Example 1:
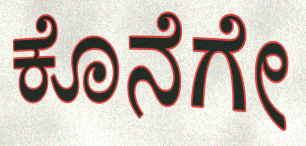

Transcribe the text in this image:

ಕೊನೆಗೇ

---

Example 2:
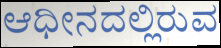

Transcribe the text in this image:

ಆಧೀನದಲ್ಲಿರುವ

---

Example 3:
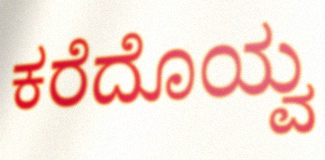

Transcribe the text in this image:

ಕರೆದೊಯ್ವ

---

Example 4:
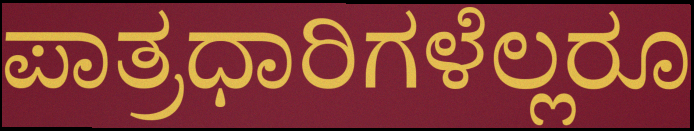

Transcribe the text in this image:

ಪಾತ್ರಧಾರಿಗಳೆಲ್ಲರೂ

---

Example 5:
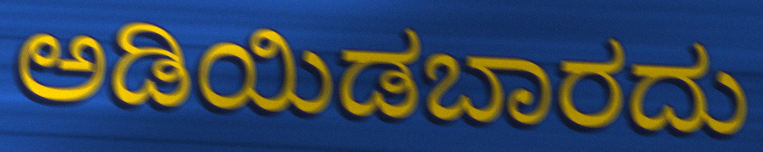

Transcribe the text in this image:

ಅಡಿಯಿಡಬಾರದು